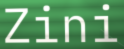
Zini